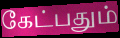
கேட்பதும்